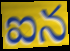
ఐన